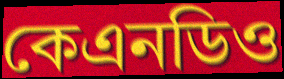
কেএনডিও